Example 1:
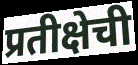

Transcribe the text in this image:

प्रतीक्षेची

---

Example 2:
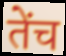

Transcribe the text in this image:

तेंच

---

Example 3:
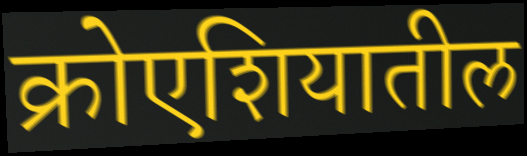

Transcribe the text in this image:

क्रोएशियातील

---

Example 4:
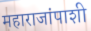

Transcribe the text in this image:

महाराजांपाशी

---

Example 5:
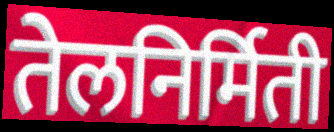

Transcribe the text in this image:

तेलनिर्मिती